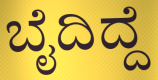
ಬೈದಿದ್ದೆ